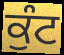
ਕੁੰਟ